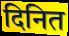
दिनित